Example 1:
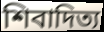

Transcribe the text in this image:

শিবাদিত্য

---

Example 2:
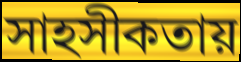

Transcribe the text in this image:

সাহসীকতায়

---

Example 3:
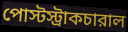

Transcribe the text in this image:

পোস্টস্ট্রাকচারাল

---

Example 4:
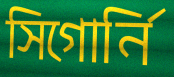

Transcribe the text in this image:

সিগোর্নি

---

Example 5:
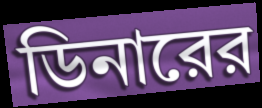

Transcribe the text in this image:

ডিনারের